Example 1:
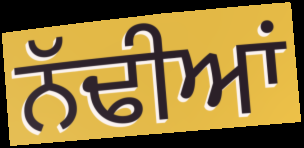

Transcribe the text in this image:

ਨੱਢੀਆਂ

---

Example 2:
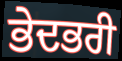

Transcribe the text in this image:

ਭੇਦਭਰੀ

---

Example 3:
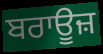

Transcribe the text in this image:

ਬਰਾਊਜ਼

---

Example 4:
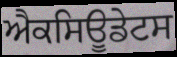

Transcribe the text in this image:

ਐਕਸਿਊਡੇਟਸ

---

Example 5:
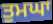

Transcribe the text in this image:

ਤੁਮਘਾ